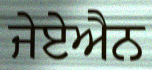
ਜੇਏਐਨ